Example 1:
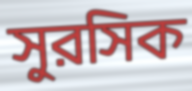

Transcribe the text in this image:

সুরসিক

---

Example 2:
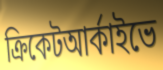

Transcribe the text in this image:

ক্রিকেটআর্কাইভে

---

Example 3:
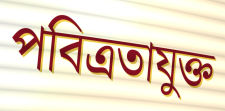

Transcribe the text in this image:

পবিত্রতাযুক্ত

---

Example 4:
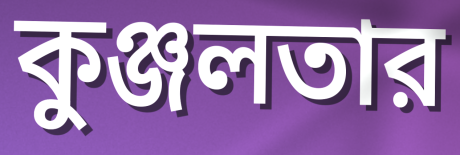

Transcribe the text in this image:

কুঞ্জলতার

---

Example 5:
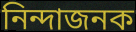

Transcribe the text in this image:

নিন্দাজনক